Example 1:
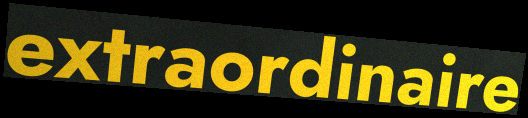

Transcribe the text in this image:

extraordinaire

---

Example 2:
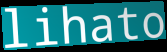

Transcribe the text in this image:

lihato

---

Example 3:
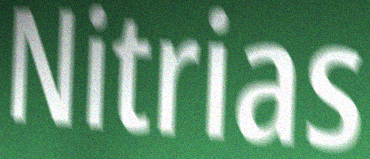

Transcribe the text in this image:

Nitrias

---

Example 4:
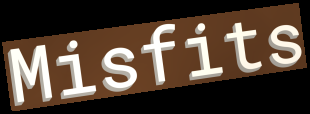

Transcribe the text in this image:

Misfits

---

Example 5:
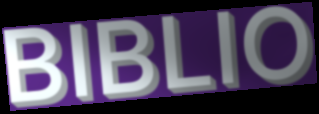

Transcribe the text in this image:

BIBLIO